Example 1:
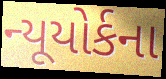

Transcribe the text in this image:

ન્યૂયોર્કના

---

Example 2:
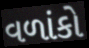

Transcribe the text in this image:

વળાંકો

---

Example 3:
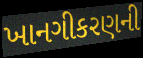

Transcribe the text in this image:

ખાનગીકરણની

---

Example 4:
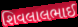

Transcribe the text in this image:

શિવલાલભાઈ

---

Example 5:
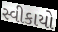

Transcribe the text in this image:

સ્વીકાયો